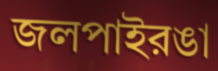
জলপাইরঙা